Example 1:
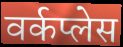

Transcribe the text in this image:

वर्कप्लेस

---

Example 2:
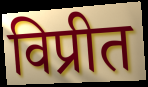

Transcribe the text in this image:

विप्रीत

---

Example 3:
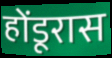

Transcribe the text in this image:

होंडूरास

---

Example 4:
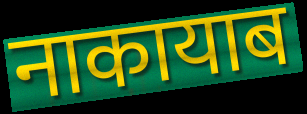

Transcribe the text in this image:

नाकायाब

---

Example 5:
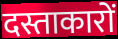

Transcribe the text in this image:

दस्ताकारों